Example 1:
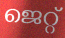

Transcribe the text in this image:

ജെറ്റ്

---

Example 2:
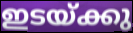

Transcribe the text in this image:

ഇടയ്ക്കു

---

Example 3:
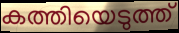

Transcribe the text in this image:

കത്തിയെടുത്ത്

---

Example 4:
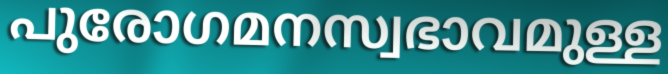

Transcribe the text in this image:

പുരോഗമനസ്വഭാവമുള്ള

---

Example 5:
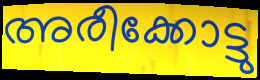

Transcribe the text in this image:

അരീക്കോട്ടു